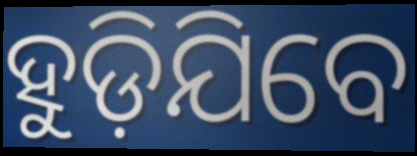
ହୁଡ଼ିଯିବେ